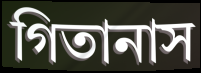
গিতানাস